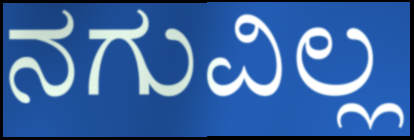
ನಗುವಿಲ್ಲ